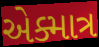
એક્માત્ર